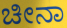
ಚೀನಾ